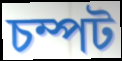
চম্পট